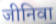
जीनिवा